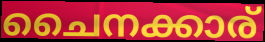
ചൈനക്കാര്